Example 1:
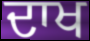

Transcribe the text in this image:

ਦਾਖ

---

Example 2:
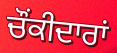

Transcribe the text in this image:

ਚੌਂਕੀਦਾਰਾਂ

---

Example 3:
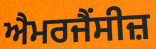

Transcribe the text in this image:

ਐਮਰਜੈਂਸੀਜ਼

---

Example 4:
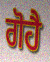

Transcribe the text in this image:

ਗੋਹੈ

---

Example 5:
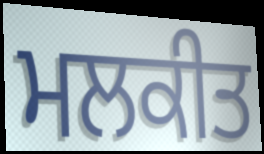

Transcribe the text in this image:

ਮਲਕੀਤ